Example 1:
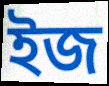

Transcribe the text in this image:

ইজ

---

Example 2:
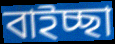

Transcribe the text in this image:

বাইচ্ছা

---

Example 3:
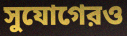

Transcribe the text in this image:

সুযোগেরও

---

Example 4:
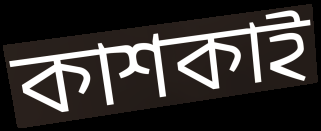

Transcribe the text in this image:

কাশকাই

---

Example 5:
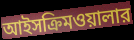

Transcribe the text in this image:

আইসক্রিমওয়ালার